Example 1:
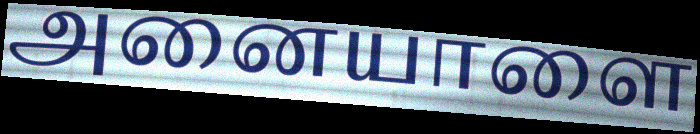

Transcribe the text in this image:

அனையாளை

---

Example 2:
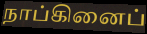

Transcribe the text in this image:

நாப்கினைப்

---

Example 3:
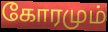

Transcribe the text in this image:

கோரமும்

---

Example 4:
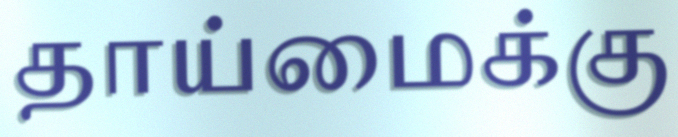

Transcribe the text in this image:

தாய்மைக்கு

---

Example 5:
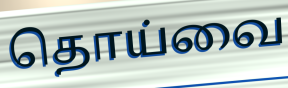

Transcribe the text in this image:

தொய்வை